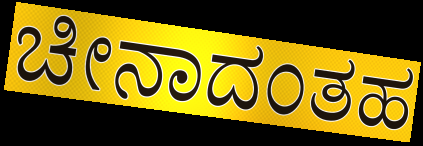
ಚೀನಾದಂತಹ